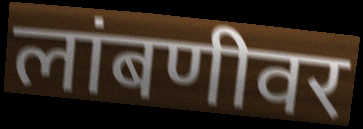
लांबणीवर